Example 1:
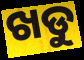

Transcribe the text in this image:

ଖଡୁ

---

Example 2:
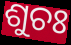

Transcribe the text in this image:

ଶୁଚଃ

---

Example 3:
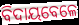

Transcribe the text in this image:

ବିଦାୟବେଳେ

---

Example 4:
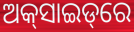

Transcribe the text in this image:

ଅକ୍‌ସାଇଡ୍‌ରେ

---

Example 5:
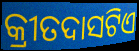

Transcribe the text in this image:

କ୍ରୀତଦାସଟିଏ